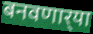
बनवणार्‍या